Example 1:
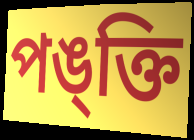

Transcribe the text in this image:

পঙ্ক্তি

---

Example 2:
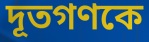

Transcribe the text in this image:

দূতগণকে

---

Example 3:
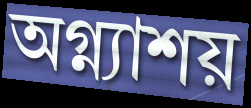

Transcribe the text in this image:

অগ্ন্যাশয়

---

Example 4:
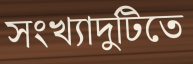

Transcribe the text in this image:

সংখ্যাদুটিতে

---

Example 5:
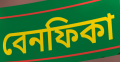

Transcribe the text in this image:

বেনফিকা